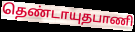
தெண்டாயுதபாணி